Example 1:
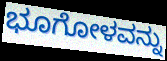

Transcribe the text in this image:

ಭೂಗೋಳವನ್ನು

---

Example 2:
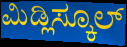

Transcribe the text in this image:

ಮಿಡ್ಲಿಸ್ಕೂಲ್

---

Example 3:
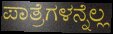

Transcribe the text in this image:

ಪಾತ್ರೆಗಳನ್ನೆಲ್ಲ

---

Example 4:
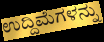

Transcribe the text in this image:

ಉದ್ದಿಮೆಗಳನ್ನು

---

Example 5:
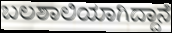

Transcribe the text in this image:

ಬಲಶಾಲಿಯಾಗಿದ್ದಾನೆ